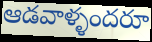
ఆడవాళ్ళందరూ